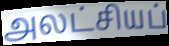
அலட்சியப்